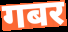
गबर